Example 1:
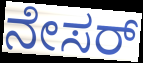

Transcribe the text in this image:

ನೇಸರ್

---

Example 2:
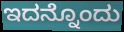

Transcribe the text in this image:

ಇದನ್ನೊಂದು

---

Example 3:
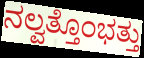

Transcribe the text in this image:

ನಲ್ವತ್ತೊಂಭತ್ತು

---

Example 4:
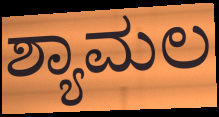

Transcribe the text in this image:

ಶ್ಯಾಮಲ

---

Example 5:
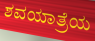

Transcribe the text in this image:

ಶವಯಾತ್ರೆಯ